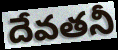
దేవతనీ